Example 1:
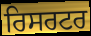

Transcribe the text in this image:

ਰਿਸਰਟਰ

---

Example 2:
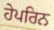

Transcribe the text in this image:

ਹੇਪਰਿਨ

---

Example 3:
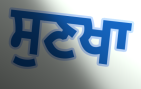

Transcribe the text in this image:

ਸੁਣਖਾ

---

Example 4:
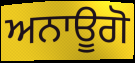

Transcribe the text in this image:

ਅਨਾਊਗੋ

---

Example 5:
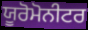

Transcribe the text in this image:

ਯੂਰੋਮੋਨੀਟਰ